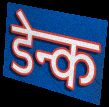
डेन्क